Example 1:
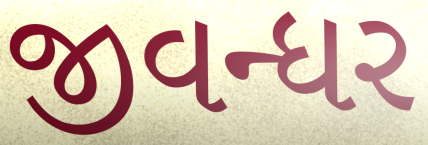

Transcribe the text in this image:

જીવન્ધર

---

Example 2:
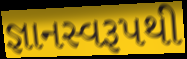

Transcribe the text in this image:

જ્ઞાનસ્વરૂપથી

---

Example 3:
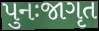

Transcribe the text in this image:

પુનઃજાગૃત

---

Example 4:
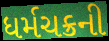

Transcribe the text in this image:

ધર્મચક્રની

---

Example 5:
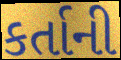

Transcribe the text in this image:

કર્તાની